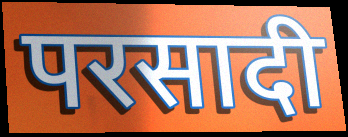
परसादी